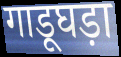
गाडूघड़ा